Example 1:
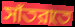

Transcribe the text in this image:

সাঁতরাতে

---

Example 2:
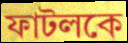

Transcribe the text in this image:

ফাটলকে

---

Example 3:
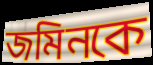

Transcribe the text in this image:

জমিনকে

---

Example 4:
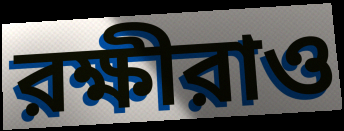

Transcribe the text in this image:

রক্ষীরাও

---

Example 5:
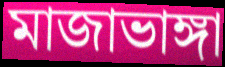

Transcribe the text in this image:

মাজাভাঙ্গা